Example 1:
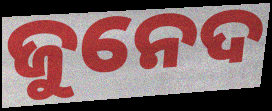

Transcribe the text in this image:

ଜୁନେଦ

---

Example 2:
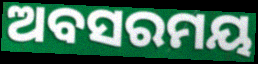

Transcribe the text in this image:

ଅବସରମୟ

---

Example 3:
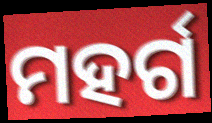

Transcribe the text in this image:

ମହର୍ଗ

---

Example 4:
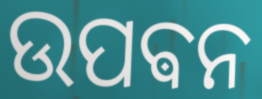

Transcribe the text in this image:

ଉପଵନ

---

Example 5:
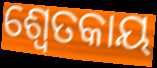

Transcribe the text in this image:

ଶ୍ବେତକାୟ